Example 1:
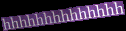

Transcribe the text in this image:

hhhhhhhhhhhhhh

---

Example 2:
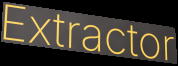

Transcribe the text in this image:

Extractor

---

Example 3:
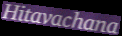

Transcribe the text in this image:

Hitavachana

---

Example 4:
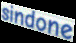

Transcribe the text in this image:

sindone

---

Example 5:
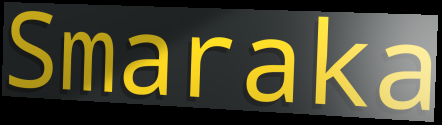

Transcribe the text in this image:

Smaraka